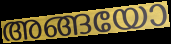
അങ്ങയോ